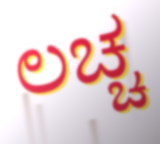
ಲಚ್ಚ